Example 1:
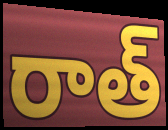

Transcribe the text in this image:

రాత్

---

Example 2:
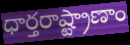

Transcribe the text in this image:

ధార్తరాష్ట్రాణాం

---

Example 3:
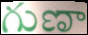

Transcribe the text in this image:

గుణా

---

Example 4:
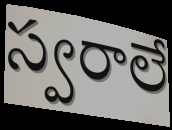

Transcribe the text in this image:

స్వరాలే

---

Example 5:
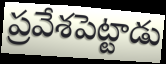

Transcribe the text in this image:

ప్రవేశపెట్టాడు